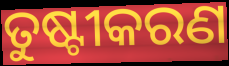
ତୁଷ୍ଟୀକରଣ